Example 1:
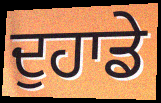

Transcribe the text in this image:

ਦੁਹਾਡੇ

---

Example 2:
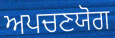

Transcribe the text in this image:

ਅਪਚਣਯੋਗ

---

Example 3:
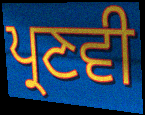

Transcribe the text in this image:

ਪ੍ਰਣਵੀ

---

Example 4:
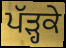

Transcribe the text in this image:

ਪੱੜ੍ਹਕੇ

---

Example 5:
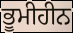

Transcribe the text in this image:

ਭੂਮੀਹੀਨ